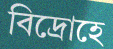
বিদ্রোহে